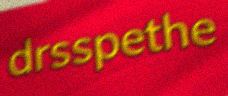
drsspethe